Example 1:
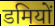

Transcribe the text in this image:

डमियों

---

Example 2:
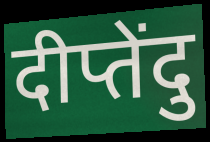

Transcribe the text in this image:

दीप्तेंदु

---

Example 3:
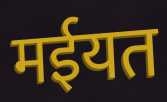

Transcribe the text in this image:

मईयत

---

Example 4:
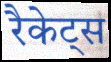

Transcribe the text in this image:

रैकेट्स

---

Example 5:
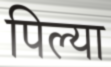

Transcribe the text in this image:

पिल्या